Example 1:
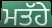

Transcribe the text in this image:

ਮਤੱਹੇ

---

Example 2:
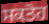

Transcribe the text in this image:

ਸਕਤੋਹ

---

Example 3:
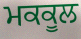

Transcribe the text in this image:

ਮਕਕੂਲ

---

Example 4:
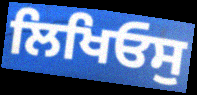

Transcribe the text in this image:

ਲਿਖਿਓਸੁ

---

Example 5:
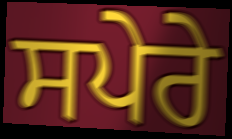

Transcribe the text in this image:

ਸਪੇਰੇ